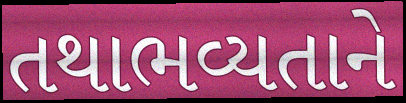
તથાભવ્યતાને